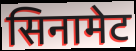
सिनामेट